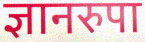
ज्ञानरुपा